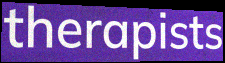
therapists